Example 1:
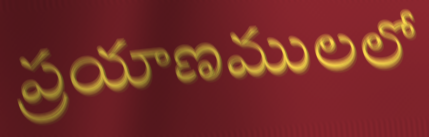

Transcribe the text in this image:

ప్రయాణములలో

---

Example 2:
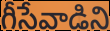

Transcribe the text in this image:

గీసేవాడిని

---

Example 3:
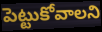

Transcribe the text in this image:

పెట్టుకోవాలని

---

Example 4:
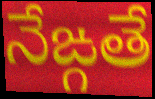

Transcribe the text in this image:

నేఙ్గతే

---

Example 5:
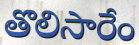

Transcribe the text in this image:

తొలిసారేం